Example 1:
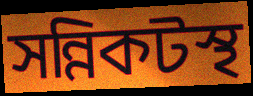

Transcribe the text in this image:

সন্নিকটস্থ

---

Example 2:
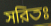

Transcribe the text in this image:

সরিতঃ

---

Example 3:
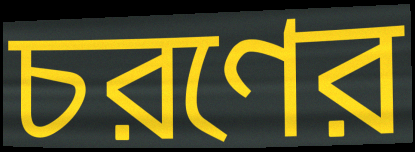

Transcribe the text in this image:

চরণের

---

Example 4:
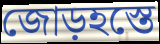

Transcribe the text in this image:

জোড়হস্তে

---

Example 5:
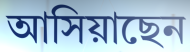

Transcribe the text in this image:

আসিয়াছেন